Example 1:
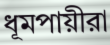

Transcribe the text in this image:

ধূমপায়ীরা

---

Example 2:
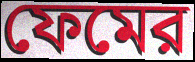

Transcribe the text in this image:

ফেমের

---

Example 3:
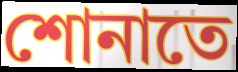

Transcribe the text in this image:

শোনাতে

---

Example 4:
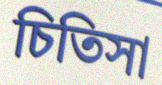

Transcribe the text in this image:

চিতিসা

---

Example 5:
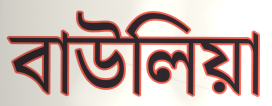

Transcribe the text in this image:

বাউলিয়া